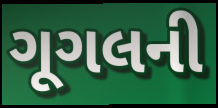
ગૂગલની